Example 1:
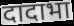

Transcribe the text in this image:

दादाभा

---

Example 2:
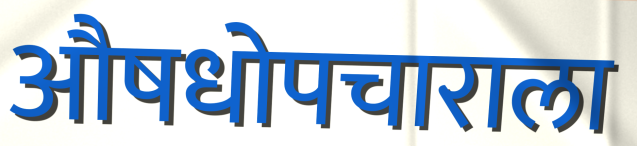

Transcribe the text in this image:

औषधोपचाराला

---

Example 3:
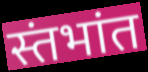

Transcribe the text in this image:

स्तंभांत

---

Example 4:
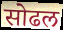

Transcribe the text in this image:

सोढल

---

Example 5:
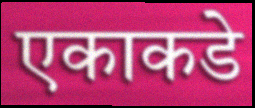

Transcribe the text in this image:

एकाकडे